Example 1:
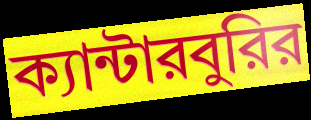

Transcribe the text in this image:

ক্যান্টারবুরির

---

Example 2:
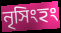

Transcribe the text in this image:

নৃসিংহং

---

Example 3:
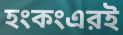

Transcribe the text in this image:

হংকংএরই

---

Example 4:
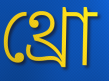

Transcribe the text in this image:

থ্রো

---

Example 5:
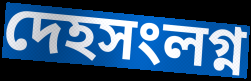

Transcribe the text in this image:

দেহসংলগ্ন